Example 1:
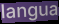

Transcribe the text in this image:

langua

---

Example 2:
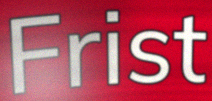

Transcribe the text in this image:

Frist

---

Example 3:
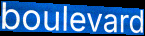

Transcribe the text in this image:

boulevard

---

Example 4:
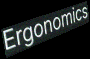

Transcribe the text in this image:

Ergonomics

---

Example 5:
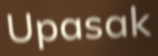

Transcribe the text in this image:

Upasak